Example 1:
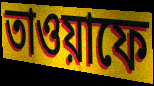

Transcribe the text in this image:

তাওয়াফে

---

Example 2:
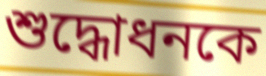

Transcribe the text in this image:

শুদ্ধোধনকে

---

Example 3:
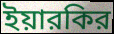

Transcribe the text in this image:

ইয়ারকির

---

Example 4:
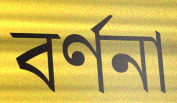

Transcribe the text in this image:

বর্ণনা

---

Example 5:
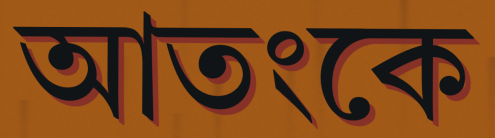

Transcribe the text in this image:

আতংকে